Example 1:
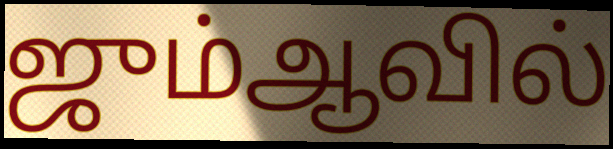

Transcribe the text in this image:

ஜும்ஆவில்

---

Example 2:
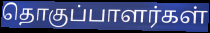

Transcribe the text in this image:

தொகுப்பாளர்கள்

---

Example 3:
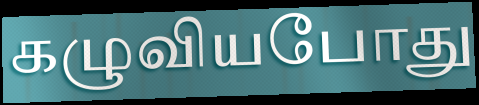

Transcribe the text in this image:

கழுவியபோது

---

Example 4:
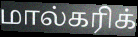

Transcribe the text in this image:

மால்கரிக்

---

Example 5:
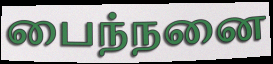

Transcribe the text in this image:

பைந்நனை